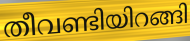
തീവണ്ടിയിറങ്ങി